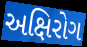
અક્ષિરોગ